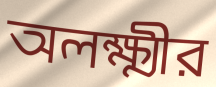
অলক্ষ্মীর